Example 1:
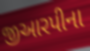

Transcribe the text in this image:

જીઆરપીના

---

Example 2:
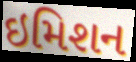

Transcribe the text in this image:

ઇમિશન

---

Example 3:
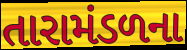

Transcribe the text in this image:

તારામંડળના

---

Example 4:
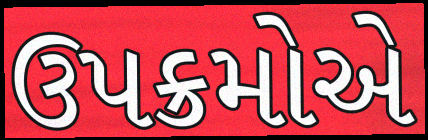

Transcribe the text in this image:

ઉપક્રમોએ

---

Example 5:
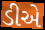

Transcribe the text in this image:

ડીએ